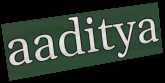
aaditya